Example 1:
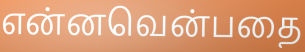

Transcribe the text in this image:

என்னவென்பதை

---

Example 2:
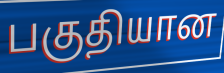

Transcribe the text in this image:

பகுதியான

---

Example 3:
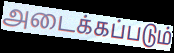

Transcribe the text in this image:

அடைக்கப்படும்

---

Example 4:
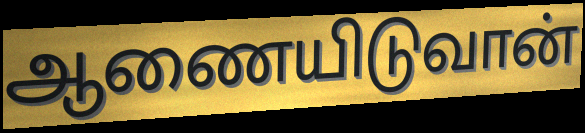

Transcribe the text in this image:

ஆணையிடுவான்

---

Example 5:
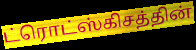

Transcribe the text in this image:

ட்ரொட்ஸ்கிசத்தின்